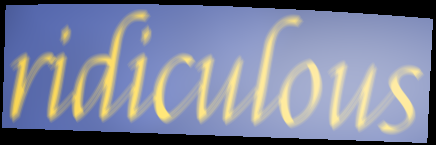
ridiculous